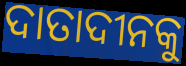
ଦାତାଦୀନକୁ